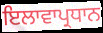
ਇਲਾਵਾਪ੍ਰਧਾਨ